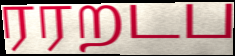
ரரறடப